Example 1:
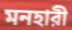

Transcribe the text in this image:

মনহারী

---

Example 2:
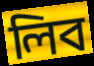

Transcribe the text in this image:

লিব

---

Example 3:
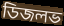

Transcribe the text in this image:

ডিজলভ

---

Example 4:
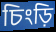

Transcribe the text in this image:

চিংড়ি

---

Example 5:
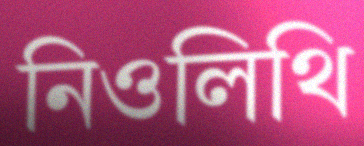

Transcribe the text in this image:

নিওলিথি